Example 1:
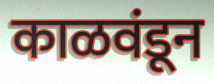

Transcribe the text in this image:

काळवंडून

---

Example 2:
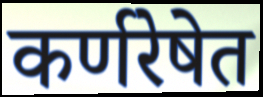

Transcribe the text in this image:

कर्णरेषेत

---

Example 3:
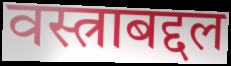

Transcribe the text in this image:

वस्त्राबद्दल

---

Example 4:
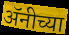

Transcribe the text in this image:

ॲनीच्या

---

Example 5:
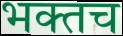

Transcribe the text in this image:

भक्तच